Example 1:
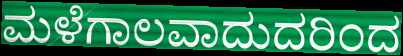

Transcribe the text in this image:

ಮಳೆಗಾಲವಾದುದರಿಂದ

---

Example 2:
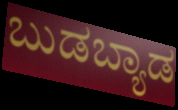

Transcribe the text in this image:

ಬುಡಬ್ಯಾಡ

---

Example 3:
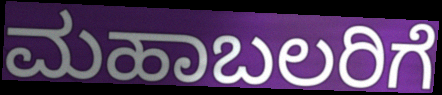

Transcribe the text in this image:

ಮಹಾಬಲರಿಗೆ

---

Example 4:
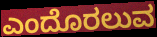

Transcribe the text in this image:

ಎಂದೊರಲುವ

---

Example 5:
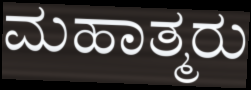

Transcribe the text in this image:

ಮಹಾತ್ಮರು